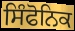
ਸਿੰਫੋਨਿਕ